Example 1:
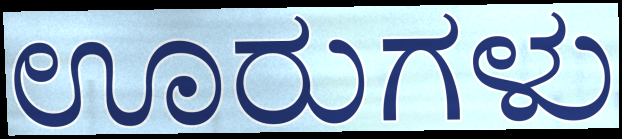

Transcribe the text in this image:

ಊರುಗಳು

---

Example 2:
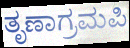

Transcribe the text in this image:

ತೃಣಾಗ್ರಮಪಿ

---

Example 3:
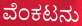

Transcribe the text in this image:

ವೆಂಕಟನು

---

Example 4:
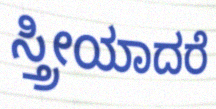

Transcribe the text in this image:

ಸ್ತ್ರೀಯಾದರೆ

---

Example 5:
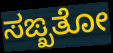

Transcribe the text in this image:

ಸಙ್ಖತೋ